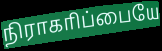
நிராகரிப்பையே